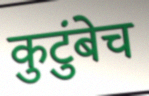
कुटुंबेच